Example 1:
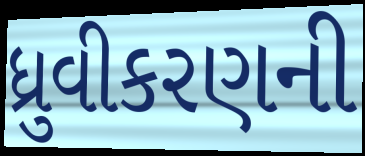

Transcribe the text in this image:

ધ્રુવીકરણની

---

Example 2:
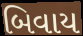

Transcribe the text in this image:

બિવાય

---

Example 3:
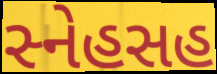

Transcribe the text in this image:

સ્નેહસહ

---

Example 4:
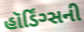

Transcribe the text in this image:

હૉર્ડિંગ્સની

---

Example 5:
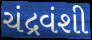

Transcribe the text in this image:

ચંદ્રવંશી